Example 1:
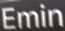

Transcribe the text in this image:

Emin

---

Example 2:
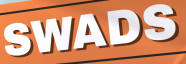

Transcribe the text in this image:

SWADS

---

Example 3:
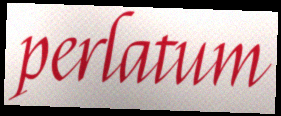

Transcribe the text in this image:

perlatum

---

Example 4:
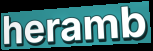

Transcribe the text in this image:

heramb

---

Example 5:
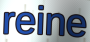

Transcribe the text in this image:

reine